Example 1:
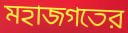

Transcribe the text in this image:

মহাজগতের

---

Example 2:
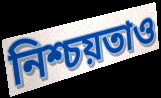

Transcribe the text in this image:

নিশ্চয়তাও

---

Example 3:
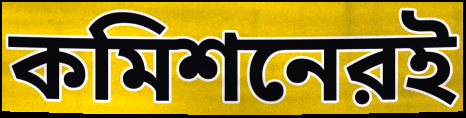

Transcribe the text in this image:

কমিশনেরই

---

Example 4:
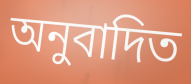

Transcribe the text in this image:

অনুবাদিত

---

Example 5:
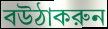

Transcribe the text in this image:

বউঠাকরুন